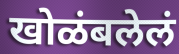
खोळंबलेलं